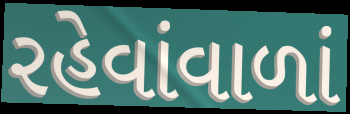
રહેવાંવાળાં